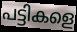
പട്ടികളെ